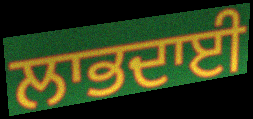
ਲਾਭਦਾਈ